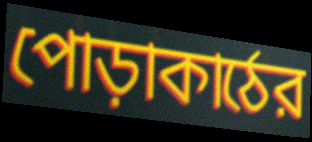
পোড়াকাঠের